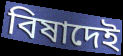
বিষাদেই